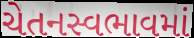
ચેતનસ્વભાવમાં